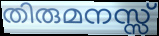
തിരുമനസ്സ്